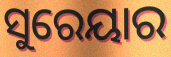
ସୁରେୟାର